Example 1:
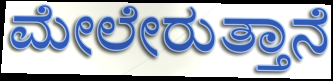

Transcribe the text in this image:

ಮೇಲೇರುತ್ತಾನೆ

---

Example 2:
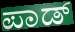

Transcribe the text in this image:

ಪಾಡ್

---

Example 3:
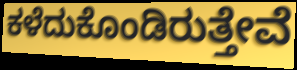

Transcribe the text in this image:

ಕಳೆದುಕೊಂಡಿರುತ್ತೇವೆ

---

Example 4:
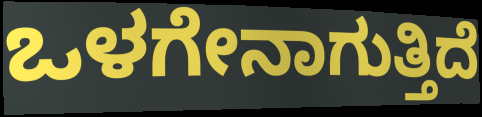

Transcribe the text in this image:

ಒಳಗೇನಾಗುತ್ತಿದೆ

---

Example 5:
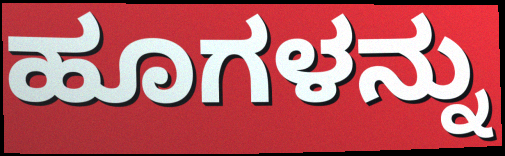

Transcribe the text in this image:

ಹೂಗಳನ್ನು